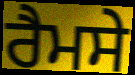
ਰੈਮਸੇ